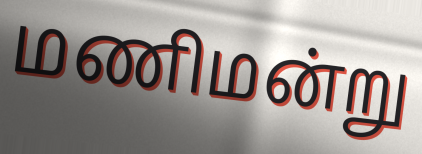
மணிமன்று